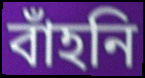
বাঁহনি